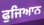
ਫੁਜਿਆਨ